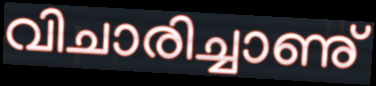
വിചാരിച്ചാണു്